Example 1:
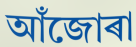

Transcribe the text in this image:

আঁজোৰা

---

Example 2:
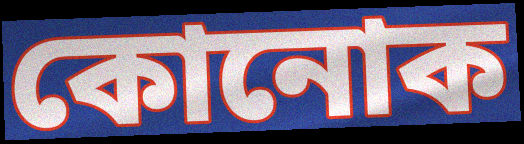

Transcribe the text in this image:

কোনোক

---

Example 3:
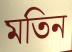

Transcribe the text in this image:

মতিন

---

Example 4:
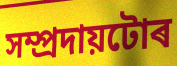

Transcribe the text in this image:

সম্প্ৰদায়টোৰ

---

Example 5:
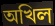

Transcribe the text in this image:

অখিল